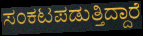
ಸಂಕಟಪಡುತ್ತಿದ್ದಾರೆ